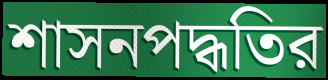
শাসনপদ্ধতির